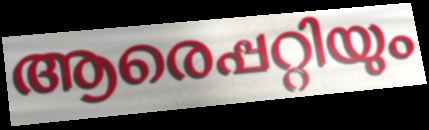
ആരെപ്പറ്റിയും